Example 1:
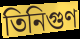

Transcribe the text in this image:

তিনিগুণ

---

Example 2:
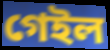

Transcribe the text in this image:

গেইল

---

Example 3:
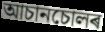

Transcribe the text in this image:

আচানচোলৰ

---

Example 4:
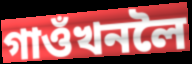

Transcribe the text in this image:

গাওঁখনলৈ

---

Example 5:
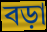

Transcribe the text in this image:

বড়া